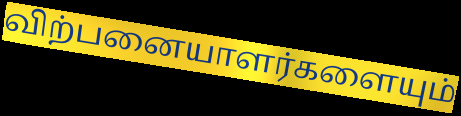
விற்பனையாளர்களையும்